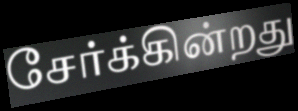
சேர்க்கின்றது